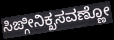
ಸಿಙ್ಗೀನಿಕ್ಖಸವಣ್ಣೋ